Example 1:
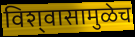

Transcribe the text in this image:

विश्वासामुळेच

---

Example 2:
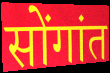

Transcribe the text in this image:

सोंगांत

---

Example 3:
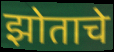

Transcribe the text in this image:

झोताचे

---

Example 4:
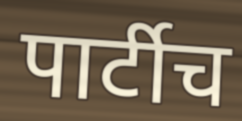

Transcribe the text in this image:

पार्टीच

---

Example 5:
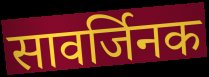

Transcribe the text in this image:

सावर्जिनक